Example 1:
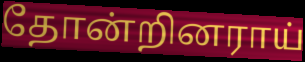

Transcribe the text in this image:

தோன்றினராய்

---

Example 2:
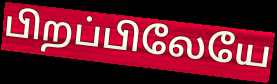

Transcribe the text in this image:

பிறப்பிலேயே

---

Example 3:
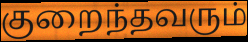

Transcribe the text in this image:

குறைந்தவரும்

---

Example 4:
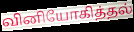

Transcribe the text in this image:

வினியோகித்தல்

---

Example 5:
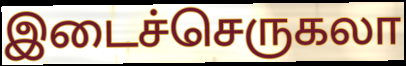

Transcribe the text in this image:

இடைச்செருகலா